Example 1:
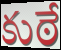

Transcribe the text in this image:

కుఠే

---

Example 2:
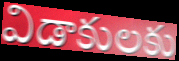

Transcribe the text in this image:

విడాకులకు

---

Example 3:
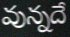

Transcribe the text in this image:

వున్నదే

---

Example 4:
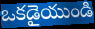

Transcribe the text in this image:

ఒకడైయుండి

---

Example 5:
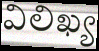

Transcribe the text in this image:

విలిఖ్య